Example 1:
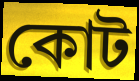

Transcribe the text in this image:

কোট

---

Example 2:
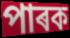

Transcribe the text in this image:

পাৰক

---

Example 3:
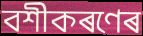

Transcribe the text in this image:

বশীকৰণেৰ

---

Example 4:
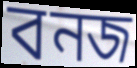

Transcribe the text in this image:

বনজ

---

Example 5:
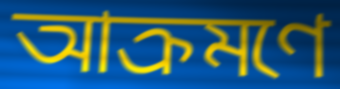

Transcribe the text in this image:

আক্ৰমণে